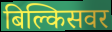
बिल्किसवर